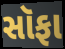
સૉફા